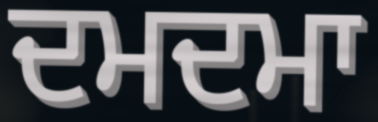
ਦਮਦਮਾ